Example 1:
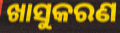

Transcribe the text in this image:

ଖାସୁକରଣ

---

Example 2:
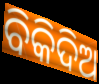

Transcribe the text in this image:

ବିକିଦିଅ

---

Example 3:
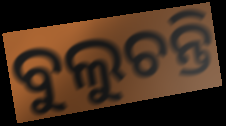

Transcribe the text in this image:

ବୁଲୁଚନ୍ତି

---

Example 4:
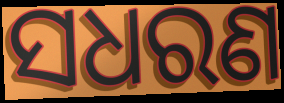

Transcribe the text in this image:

ସଧରଣ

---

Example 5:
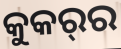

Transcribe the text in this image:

କୁକର୍‌ର